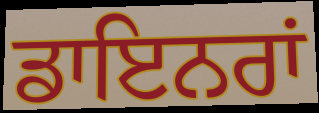
ਡਾਇਨਰਾਂ